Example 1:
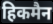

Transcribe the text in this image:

हिकमैन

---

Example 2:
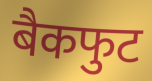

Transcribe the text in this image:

बैकफुट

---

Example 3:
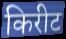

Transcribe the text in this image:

किरीट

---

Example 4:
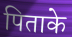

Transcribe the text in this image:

पिताके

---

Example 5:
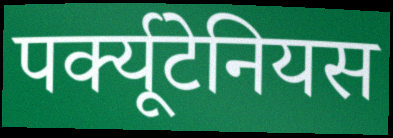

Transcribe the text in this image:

पर्क्यूटेनियस